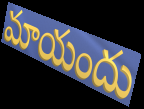
మాయందు